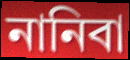
নানিবা